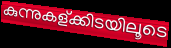
കുന്നുകള്ക്കിടയിലൂടെ